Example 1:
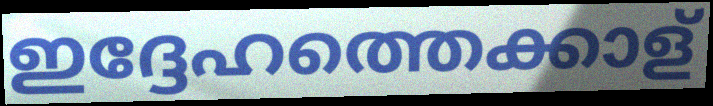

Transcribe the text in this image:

ഇദ്ദേഹത്തെക്കാള്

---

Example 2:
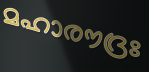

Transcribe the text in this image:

മഹാരൗദ്രഃ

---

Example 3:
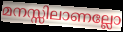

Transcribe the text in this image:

മനസ്സിലാണല്ലോ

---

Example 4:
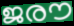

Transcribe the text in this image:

ജരൗ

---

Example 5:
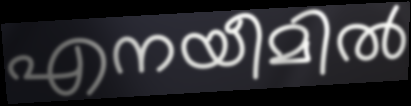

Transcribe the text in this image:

എനയീമിൽ